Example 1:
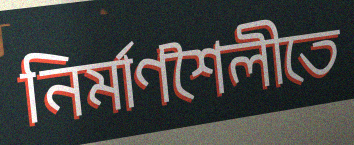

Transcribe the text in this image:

নির্মাণশৈলীতে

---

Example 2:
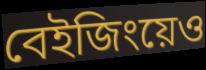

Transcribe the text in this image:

বেইজিংয়েও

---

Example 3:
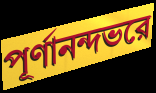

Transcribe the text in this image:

পূর্ণানন্দভরে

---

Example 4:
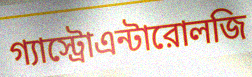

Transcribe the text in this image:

গ্যাস্ট্রোএন্টারোলজি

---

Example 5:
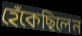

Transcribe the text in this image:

হেঁকেছিলেন